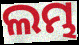
ଲମ୍ଭ